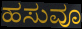
ಹಸುವೂ